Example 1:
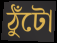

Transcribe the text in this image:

ঠুঁটো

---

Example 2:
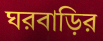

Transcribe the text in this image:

ঘরবাড়ির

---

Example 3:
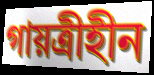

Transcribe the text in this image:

গায়ত্রীহীন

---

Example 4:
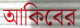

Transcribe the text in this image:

আকিবের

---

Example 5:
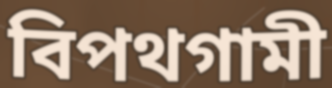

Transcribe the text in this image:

বিপথগামী